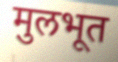
मुलभूत